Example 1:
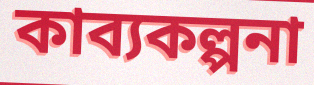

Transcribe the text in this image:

কাব্যকল্পনা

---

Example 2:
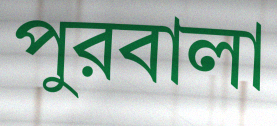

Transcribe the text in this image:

পুরবালা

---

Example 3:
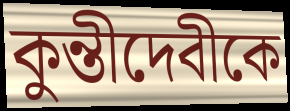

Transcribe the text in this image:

কুন্তীদেবীকে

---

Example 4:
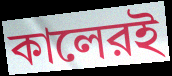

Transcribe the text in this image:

কালেরই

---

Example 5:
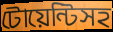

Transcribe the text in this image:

টোয়েন্টিসহ